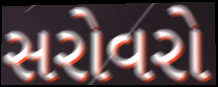
સરોવરો